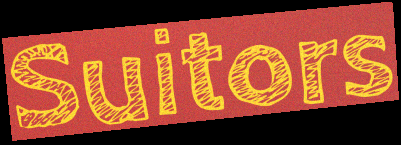
Suitors